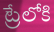
ట్రేలోకి